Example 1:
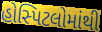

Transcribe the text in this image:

હોસ્પિટલોમાંથી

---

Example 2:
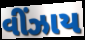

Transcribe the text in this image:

વીંઝાય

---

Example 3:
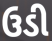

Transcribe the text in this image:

ઉડી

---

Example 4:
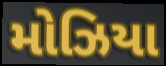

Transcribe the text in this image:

મોઝિયા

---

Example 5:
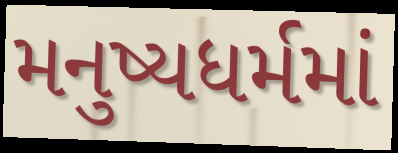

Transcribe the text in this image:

મનુષ્યધર્મમાં